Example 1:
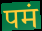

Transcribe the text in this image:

पमं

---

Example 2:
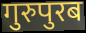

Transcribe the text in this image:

गुरुपुरब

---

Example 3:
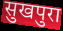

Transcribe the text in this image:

सुखपुरा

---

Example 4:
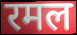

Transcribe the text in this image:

रमल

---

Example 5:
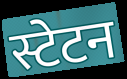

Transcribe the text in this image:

स्टेटन